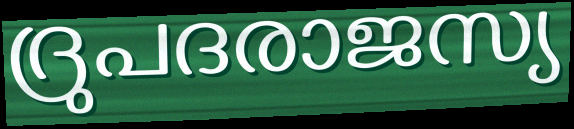
ദ്രുപദരാജസ്യ